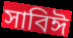
সাবিঈ